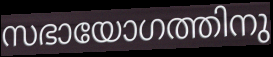
സഭായോഗത്തിനു